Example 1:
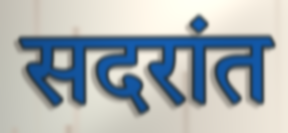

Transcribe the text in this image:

सदरांत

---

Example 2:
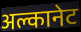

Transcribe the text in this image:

अल्कानेट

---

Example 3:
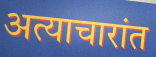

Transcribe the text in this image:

अत्याचारांत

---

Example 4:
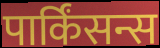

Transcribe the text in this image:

पार्किंसन्स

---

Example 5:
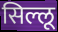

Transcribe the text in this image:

सिल्लू